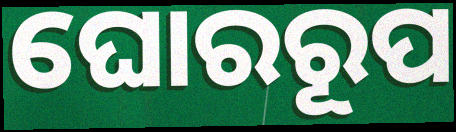
ଘୋରରୂପ